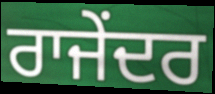
ਰਾਜੇਂਦਰ